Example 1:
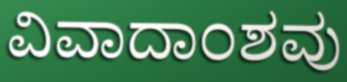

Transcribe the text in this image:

ವಿವಾದಾಂಶವು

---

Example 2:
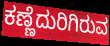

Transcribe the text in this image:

ಕಣ್ಣೆದುರಿಗಿರುವ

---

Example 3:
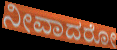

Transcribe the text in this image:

ನೀವಾದರೋ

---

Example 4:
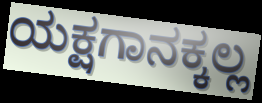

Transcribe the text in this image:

ಯಕ್ಷಗಾನಕ್ಕಲ್ಲ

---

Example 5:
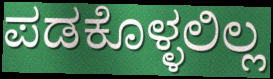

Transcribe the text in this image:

ಪಡಕೊಳ್ಳಲಿಲ್ಲ